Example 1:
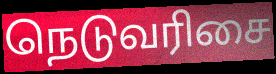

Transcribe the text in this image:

நெடுவரிசை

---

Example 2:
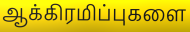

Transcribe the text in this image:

ஆக்கிரமிப்புகளை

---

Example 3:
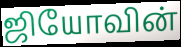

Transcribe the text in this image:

ஜியோவின்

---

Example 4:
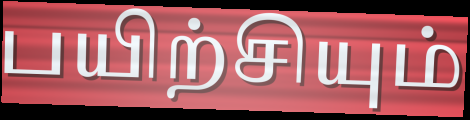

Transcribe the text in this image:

பயிற்சியும்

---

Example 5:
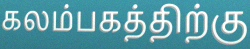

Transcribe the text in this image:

கலம்பகத்திற்கு